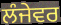
ਲੰਜੇਵਰ